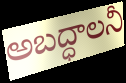
అబద్ధాలనీ